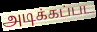
அடிக்கப்பட